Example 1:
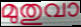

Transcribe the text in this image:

മുതുവാ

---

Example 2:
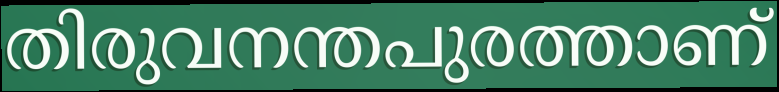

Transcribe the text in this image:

തിരുവനന്തപുരത്താണ്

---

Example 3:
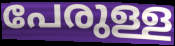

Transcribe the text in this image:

പേരുള്ള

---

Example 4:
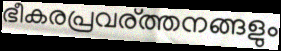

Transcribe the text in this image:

ഭീകരപ്രവര്ത്തനങ്ങളും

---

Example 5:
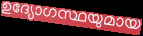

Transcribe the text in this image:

ഉദ്യോഗസ്ഥയുമായ